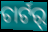
ଚାର୍ଟର୍